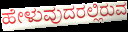
ಹೇಳುವುದರಲ್ಲಿರುವ